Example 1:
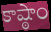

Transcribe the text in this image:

కాష్ఠాం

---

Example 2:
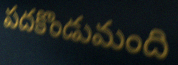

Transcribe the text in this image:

పదకొండుమంది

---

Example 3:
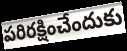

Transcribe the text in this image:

పరిరక్షించేందుకు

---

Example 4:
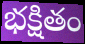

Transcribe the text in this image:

భక్షితం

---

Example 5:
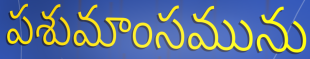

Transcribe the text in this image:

పశుమాంసమును